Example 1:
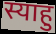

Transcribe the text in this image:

स्याहु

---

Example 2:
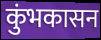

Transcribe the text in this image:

कुंभकासन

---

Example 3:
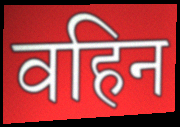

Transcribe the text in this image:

वहिन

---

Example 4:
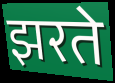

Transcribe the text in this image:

झरते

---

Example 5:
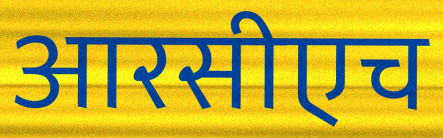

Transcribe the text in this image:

आरसीएच